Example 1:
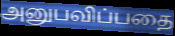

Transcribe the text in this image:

அனுபவிப்பதை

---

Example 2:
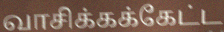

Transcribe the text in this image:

வாசிக்கக்கேட்ட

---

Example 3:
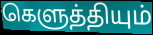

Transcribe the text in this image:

கெளுத்தியும்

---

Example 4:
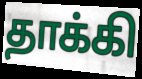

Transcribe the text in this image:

தாக்கி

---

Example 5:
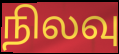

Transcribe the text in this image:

நிலவு